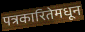
पत्रकारितेमधून